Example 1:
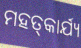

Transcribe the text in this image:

ମହତ୍‌କାର୍ଯ୍ୟ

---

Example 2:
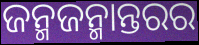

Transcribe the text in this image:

ଜନ୍ମଜନ୍ମାନ୍ତରର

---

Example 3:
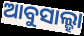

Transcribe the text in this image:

ଆବୁସାଲ୍ହା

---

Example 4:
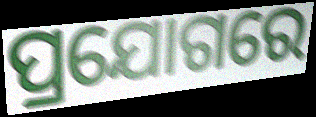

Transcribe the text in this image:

ପ୍ରଯୋଗରେ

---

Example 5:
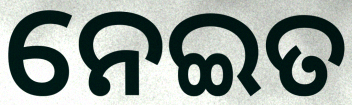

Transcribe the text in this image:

ନେଇତ